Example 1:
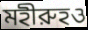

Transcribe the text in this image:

মহীরুহও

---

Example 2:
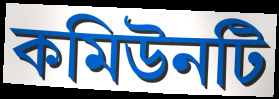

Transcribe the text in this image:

কমিউনটি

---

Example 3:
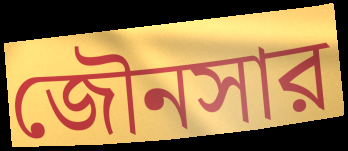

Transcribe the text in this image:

জৌনসার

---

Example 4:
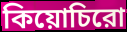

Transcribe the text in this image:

কিয়োচিরো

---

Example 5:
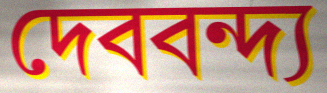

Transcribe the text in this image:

দেববন্দ্য